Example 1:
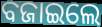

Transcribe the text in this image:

ବଜାଇଲେ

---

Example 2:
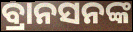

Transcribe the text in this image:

ବ୍ରାନସନଙ୍କ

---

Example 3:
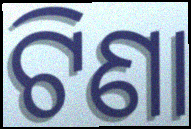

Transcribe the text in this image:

ଟିଣା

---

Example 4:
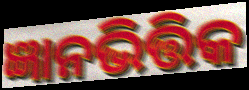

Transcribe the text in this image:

ଜ୍ଞାନଭିତ୍ତିକ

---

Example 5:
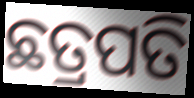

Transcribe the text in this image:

ଛତ୍ରପତି